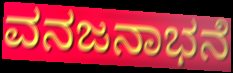
ವನಜನಾಭನೆ